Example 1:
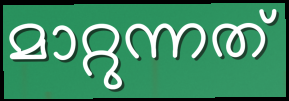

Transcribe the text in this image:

മാറ്റുന്നത്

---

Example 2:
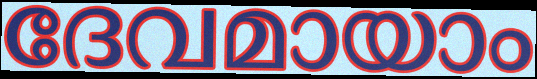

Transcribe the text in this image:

ദേവമായാം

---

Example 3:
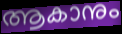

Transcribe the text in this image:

ആകാനും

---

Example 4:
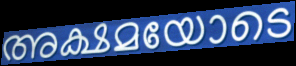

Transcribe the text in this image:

അക്ഷമയോടെ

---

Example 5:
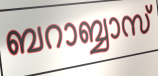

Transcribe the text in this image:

ബറാബ്ബാസ്